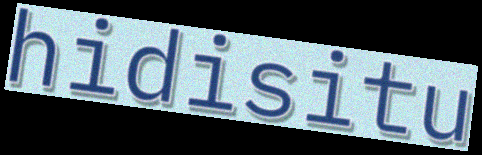
hidisitu